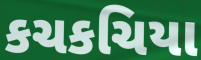
કચકચિયા